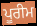
ਪੂਰੀਮ